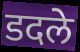
डदले